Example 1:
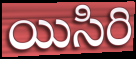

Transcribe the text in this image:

యిసిరి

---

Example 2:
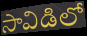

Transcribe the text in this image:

సావిడిలో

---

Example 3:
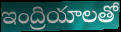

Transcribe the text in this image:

ఇంద్రియాలతో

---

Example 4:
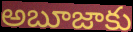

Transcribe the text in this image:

అబూజాకు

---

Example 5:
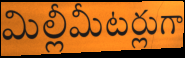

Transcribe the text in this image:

మిల్లీమీటర్లుగా